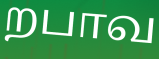
றபாவ